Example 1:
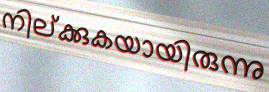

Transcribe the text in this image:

നില്ക്കുകയായിരുന്നു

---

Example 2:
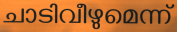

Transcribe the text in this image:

ചാടിവീഴുമെന്ന്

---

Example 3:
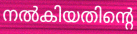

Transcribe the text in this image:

നൽകിയതിന്റെ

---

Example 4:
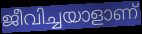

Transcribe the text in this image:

ജീവിച്ചയാളാണ്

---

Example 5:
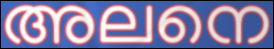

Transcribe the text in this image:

അലനെ